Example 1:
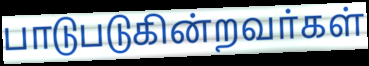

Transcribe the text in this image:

பாடுபடுகின்றவர்கள்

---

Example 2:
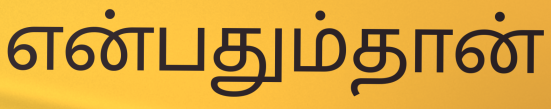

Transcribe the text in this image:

என்பதும்தான்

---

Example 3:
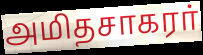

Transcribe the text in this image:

அமிதசாகரர்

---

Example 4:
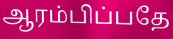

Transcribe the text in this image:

ஆரம்பிப்பதே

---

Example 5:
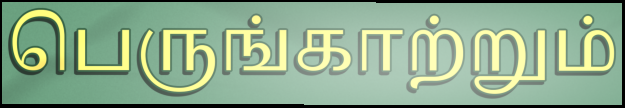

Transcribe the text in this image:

பெருங்காற்றும்